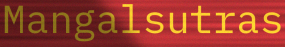
Mangalsutras